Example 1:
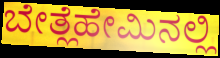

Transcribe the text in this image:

ಬೇತ್ಲೆಹೇಮಿನಲ್ಲಿ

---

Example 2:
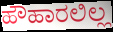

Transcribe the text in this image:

ಹೌಹಾರಲಿಲ್ಲ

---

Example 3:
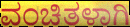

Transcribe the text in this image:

ವಂಚಿತಳಾಗಿ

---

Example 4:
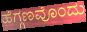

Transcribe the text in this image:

ಹೆಗ್ಗಣವೊಂದು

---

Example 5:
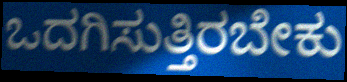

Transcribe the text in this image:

ಒದಗಿಸುತ್ತಿರಬೇಕು